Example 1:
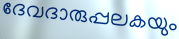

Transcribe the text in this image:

ദേവദാരുപ്പലകയും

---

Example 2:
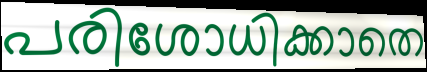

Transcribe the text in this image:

പരിശോധിക്കാതെ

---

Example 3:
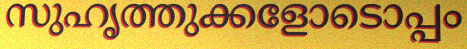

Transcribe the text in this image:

സുഹൃത്തുക്കളോടൊപ്പം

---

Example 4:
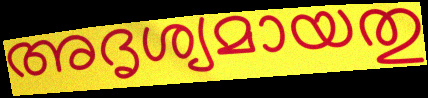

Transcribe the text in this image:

അദൃശ്യമായതു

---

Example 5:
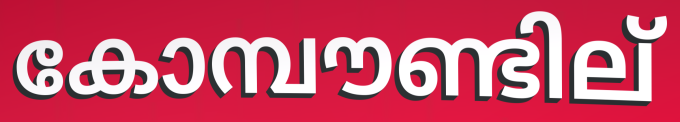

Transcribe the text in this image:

കോമ്പൗണ്ടില്